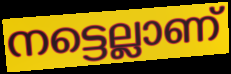
നട്ടെല്ലാണ്